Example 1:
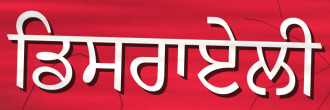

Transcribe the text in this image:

ਡਿਸਰਾਏਲੀ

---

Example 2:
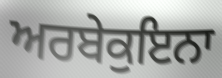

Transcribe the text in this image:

ਅਰਬੇਕੁਇਨਾ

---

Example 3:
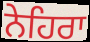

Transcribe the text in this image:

ਨੇਹਿਰਾ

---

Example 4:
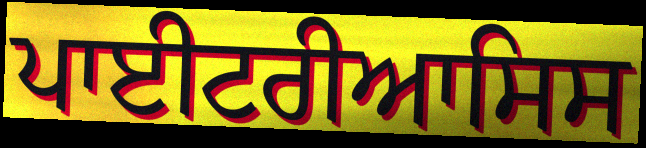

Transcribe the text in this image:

ਪਾਈਟਰੀਆਸਿਸ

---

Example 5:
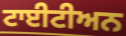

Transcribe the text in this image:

ਟਾਈਟੀਅਨ